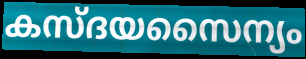
കസ്ദയസൈന്യം